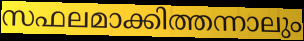
സഫലമാക്കിത്തന്നാലും